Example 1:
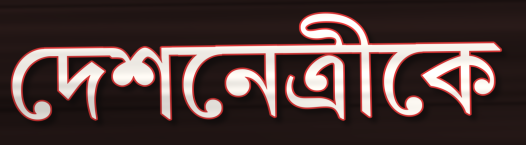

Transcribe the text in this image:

দেশনেত্রীকে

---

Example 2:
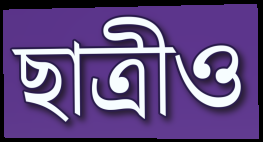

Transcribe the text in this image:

ছাত্রীও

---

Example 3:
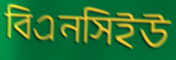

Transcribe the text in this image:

বিএনসিইউ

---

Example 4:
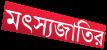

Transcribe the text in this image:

মৎস্যজাতির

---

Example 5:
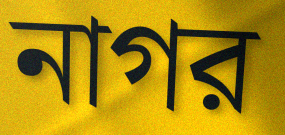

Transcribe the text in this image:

নাগর